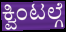
ಕ್ವಿಂಟಲ್ಗೆ